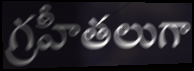
గ్రహీతలుగా